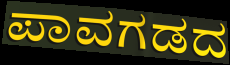
ಪಾವಗಡದ